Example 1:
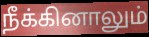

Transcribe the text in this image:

நீக்கினாலும்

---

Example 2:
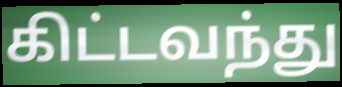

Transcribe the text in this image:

கிட்டவந்து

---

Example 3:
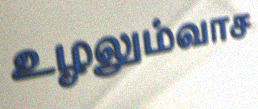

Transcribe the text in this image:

உழலும்வாச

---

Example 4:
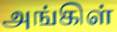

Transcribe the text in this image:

அங்கிள்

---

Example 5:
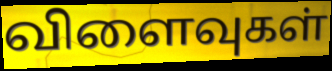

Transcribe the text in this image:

விளைவுகள்